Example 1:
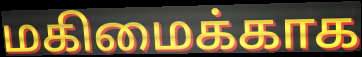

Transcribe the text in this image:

மகிமைக்காக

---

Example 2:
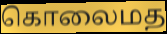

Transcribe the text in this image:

கொலைமத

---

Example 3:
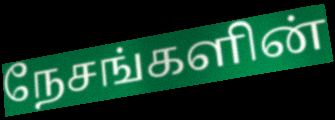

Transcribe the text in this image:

நேசங்களின்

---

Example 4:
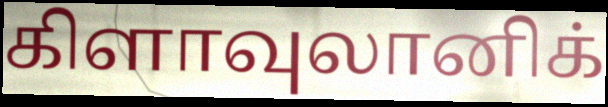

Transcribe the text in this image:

கிளாவுலானிக்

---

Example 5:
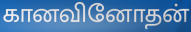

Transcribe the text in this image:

கானவினோதன்